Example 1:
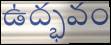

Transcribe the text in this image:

ఉద్భవం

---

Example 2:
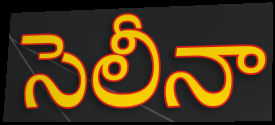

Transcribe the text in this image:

సెలీనా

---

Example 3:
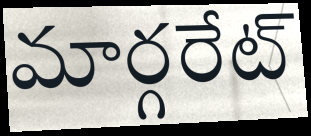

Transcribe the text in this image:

మార్గరేట్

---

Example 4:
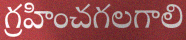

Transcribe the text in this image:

గ్రహించగలగాలి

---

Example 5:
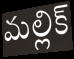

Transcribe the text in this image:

మల్లిక్